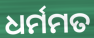
ଧର୍ମମତ